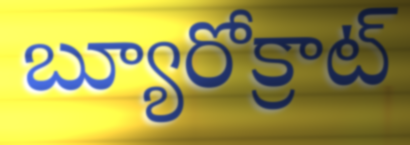
బ్యూరోక్రాట్